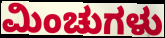
ಮಿಂಚುಗಳು